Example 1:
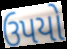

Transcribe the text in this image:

ઉપયો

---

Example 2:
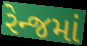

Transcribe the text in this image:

રેન્જમાં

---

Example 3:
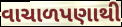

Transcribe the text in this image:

વાચાળપણાથી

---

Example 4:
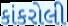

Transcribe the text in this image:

કાંકરોલી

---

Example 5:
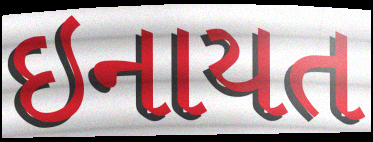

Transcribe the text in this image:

ઇનાયત